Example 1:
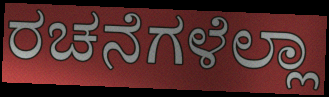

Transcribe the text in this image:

ರಚನೆಗಳೆಲ್ಲಾ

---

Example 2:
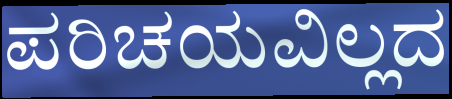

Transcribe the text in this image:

ಪರಿಚಯವಿಲ್ಲದ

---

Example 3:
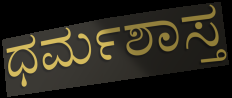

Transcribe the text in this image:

ಧರ್ಮಶಾಸ್ತ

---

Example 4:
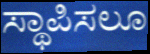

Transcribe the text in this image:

ಸ್ಥಾಪಿಸಲೂ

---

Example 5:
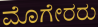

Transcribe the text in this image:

ಮೊಗೇರರು